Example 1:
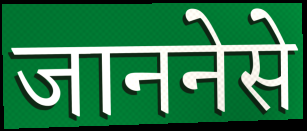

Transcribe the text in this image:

जाननेसे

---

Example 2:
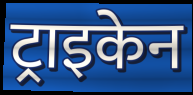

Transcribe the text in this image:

ट्राइकेन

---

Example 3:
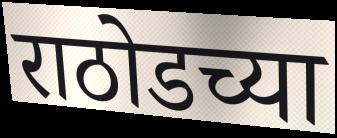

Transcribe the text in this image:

राठोडच्या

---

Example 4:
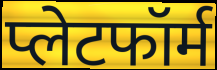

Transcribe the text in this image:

प्‍लेटफॉर्म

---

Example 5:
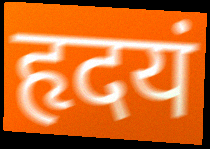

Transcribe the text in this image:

हृदयं